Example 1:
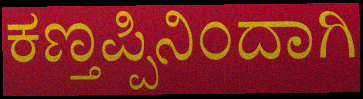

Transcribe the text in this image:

ಕಣ್ತಪ್ಪಿನಿಂದಾಗಿ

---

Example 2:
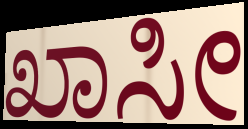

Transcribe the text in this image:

ಖಾಸೀ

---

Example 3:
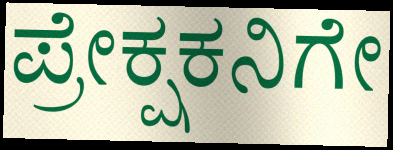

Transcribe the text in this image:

ಪ್ರೇಕ್ಷಕನಿಗೇ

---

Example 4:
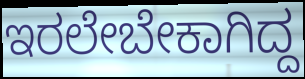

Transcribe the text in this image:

ಇರಲೇಬೇಕಾಗಿದ್ದ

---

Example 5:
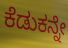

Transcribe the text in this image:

ಕೆಡುಕನ್ನೇ